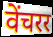
वेंचरर